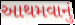
આથમવાનું